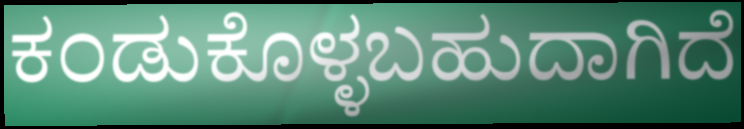
ಕಂಡುಕೊಳ್ಳಬಹುದಾಗಿದೆ